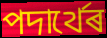
পদাৰ্থেৰ